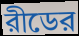
রীডের